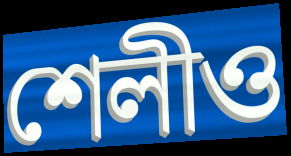
শেলীও